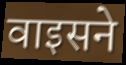
वाइसने